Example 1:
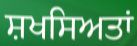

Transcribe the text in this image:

ਸ਼ਖਸਿਅਤਾਂ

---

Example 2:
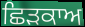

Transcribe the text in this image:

ਛਿੜਕਾਅ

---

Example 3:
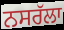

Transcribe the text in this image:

ਨਸਰੱਲਾ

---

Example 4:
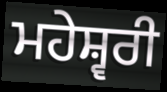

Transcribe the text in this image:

ਮਹੇਸ਼੍ਵਰੀ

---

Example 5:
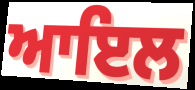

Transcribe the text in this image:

ਆਇਲ